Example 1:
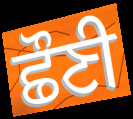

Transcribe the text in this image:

ਛੌਣੀ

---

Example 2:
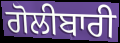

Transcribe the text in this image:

ਗੋਲੀਬਾਰੀ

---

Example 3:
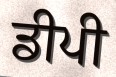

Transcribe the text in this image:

ਡੀਪੀ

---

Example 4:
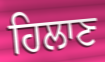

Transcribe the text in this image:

ਹਿਲਾਣ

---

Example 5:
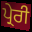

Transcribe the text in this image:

ਪ੍ਰੇਰੀ